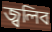
জ্বলিব